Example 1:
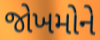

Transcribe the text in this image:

જોખમોને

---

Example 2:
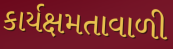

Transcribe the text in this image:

કાર્યક્ષમતાવાળી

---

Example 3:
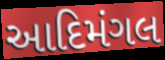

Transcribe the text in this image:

આદિમંગલ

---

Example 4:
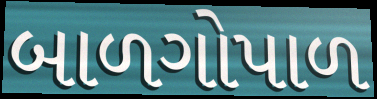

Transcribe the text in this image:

બાળગોપાળ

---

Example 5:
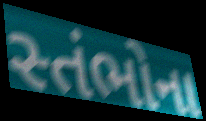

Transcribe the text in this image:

સ્તંભોના